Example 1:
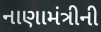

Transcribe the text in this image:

નાણામંત્રીની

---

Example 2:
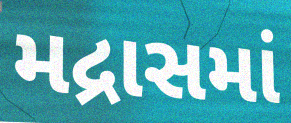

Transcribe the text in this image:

મદ્રાસમાં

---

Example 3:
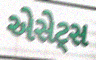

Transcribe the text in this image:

એસેટ્સ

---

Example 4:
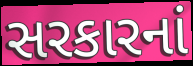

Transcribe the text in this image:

સરકારનાં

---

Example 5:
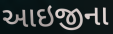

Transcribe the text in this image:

આઇજીના